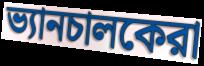
ভ্যানচালকেরা